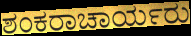
ಶಂಕರಾಚಾರ್ಯರು